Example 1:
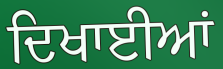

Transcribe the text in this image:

ਦਿਖਾਈਆਂ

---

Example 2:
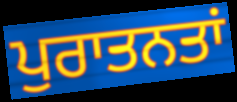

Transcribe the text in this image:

ਪੁਰਾਤਨਤਾਂ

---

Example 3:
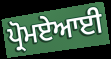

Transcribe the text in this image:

ਪ੍ਰੋਮਏਆਈ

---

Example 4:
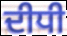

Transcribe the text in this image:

ਦੀਧੀ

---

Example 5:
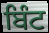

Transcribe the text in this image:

ਬਿੰਟ